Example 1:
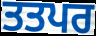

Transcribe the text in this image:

ਤਤਪਰ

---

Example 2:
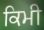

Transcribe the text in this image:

ਕਿਮੀ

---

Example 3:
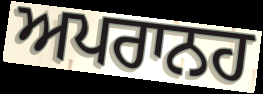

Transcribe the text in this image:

ਅਪਰਾਨਹ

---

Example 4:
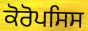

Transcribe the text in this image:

ਕੋਰੋਪਸਿਸ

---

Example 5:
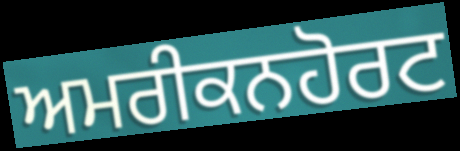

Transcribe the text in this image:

ਅਮਰੀਕਨਹੋਰਟ